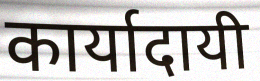
कार्यादायी